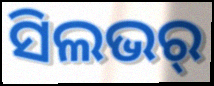
ସିଲଭର୍